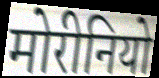
मोरीनियो